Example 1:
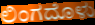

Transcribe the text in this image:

ಲಿಂಗದೊಳು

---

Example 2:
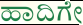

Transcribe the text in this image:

ಹಾದಿಗೇ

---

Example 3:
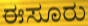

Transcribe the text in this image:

ಈಸೂರು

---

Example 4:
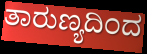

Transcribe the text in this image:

ತಾರುಣ್ಯದಿಂದ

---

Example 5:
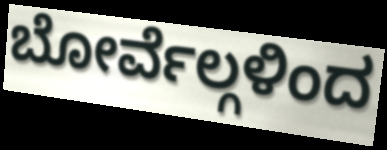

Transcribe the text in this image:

ಬೋರ್ವೆಲ್ಗಳಿಂದ